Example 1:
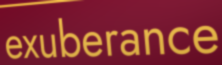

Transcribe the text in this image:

exuberance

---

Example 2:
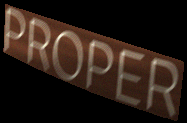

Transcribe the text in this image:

PROPER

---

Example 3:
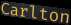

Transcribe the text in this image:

Carlton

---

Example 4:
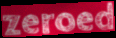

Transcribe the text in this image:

zeroed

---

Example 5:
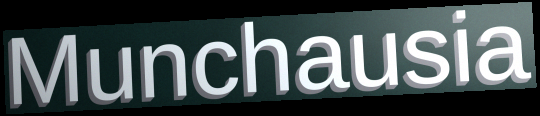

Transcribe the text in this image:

Munchausia